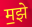
म॒झे